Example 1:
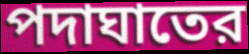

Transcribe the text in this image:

পদাঘাতের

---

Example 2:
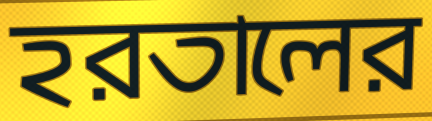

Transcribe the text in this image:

হরতালের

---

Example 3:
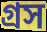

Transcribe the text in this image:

গ্রস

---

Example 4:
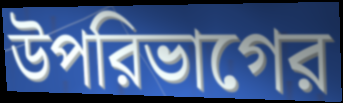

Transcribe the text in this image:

উপরিভাগের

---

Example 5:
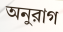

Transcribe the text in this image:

অনুরাগ